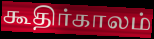
கூதிர்காலம்